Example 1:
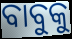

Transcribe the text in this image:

ବାବୁକୁ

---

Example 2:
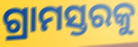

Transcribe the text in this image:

ଗ୍ରାମସ୍ତରକୁ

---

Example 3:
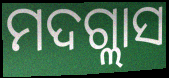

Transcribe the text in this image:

ମଦଗ୍ଲାସ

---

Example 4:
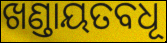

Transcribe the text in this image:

ଖଣ୍ଡାୟତବଧୂ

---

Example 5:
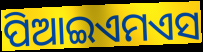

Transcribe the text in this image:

ପିଆଇଏମଏସ